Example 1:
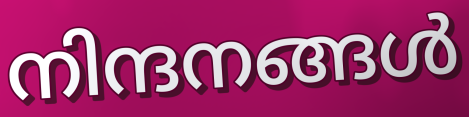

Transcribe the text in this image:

നിന്ദനങ്ങൾ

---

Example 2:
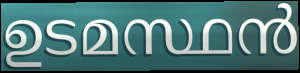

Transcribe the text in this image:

ഉടമസ്ഥൻ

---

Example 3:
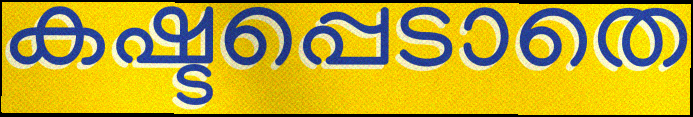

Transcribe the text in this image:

കഷ്ടപ്പെടാതെ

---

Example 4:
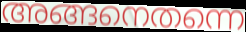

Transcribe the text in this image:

അങ്ങനെതന്നെ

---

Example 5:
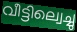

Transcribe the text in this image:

വീട്ടില്വെച്ചു